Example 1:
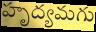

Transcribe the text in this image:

హృద్యమగు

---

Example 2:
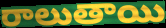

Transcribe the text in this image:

రాలుతాయి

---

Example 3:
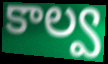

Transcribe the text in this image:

కాల్వ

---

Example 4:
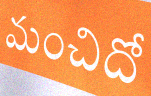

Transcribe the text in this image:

మంచిదో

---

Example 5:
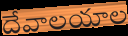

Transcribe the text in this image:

దేవాలయాల